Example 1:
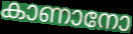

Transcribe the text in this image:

കാണാനോ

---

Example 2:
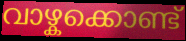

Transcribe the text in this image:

വാഴ്കക്കൊണ്ട്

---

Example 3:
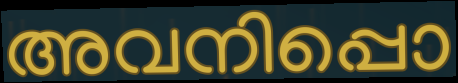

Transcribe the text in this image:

അവനിപ്പൊ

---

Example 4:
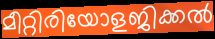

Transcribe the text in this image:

മീറ്റിരിയോളജിക്കൽ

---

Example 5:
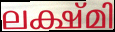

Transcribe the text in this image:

ലക്ഷ്‌മി